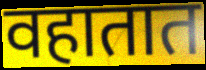
वहातात